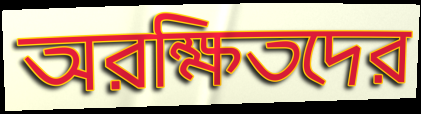
অরক্ষিতদের